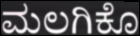
ಮಲಗಿಕೊ